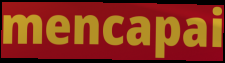
mencapai